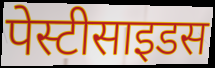
पेस्टीसाइडस